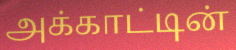
அக்காட்டின்